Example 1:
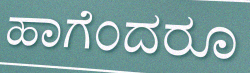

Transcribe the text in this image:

ಹಾಗೆಂದರೂ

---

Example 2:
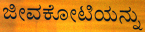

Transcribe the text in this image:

ಜೀವಕೋಟಿಯನ್ನು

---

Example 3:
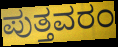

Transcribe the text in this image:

ಪುತ್ತವರಂ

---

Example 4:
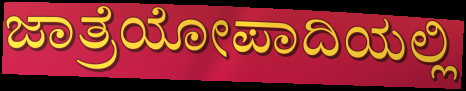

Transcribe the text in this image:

ಜಾತ್ರೆಯೋಪಾದಿಯಲ್ಲಿ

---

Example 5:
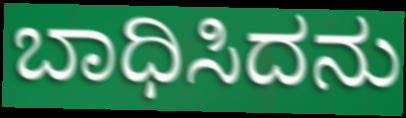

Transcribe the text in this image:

ಬಾಧಿಸಿದನು